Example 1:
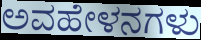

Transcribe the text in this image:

ಅವಹೇಳನಗಳು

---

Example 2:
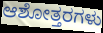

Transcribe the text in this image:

ಆಶೋತ್ತರಗಳು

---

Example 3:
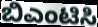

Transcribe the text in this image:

ಬಿಎಂಟಿಸಿ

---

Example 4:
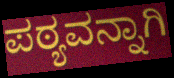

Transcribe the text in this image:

ಪಠ್ಯವನ್ನಾಗಿ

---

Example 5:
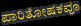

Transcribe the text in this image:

ಪಾರಿತೋಷಕವೂ